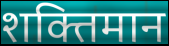
शक्तिमान